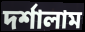
দর্শালাম